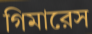
গিমারেস